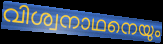
വിശ്വനാഥനെയും